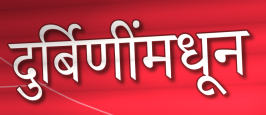
दुर्बिणींमधून